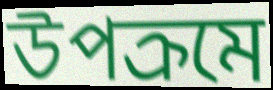
উপক্রমে